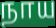
நாய